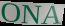
ONA